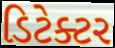
ડિટેક્ટર